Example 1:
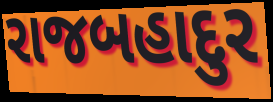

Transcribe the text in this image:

રાજબહાદુર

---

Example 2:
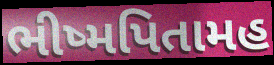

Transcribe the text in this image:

ભીષ્મપિતામહ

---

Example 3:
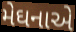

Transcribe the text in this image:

મેઘનાએ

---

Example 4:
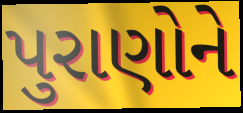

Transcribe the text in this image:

પુરાણોને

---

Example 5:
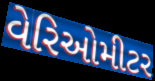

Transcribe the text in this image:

વેરિઓમીટર